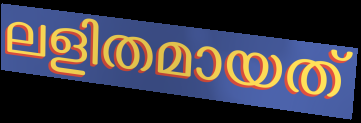
ലളിതമായത്